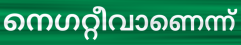
നെഗറ്റീവാണെന്ന്